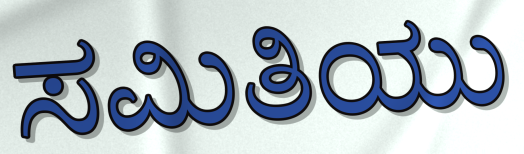
ಸಮಿತಿಯು